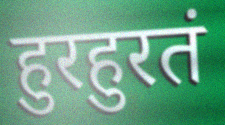
हुरहुरतं